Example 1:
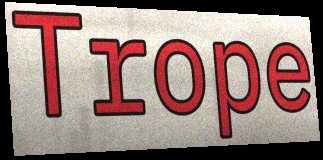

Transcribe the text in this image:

Trope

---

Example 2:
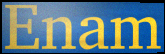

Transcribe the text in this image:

Enam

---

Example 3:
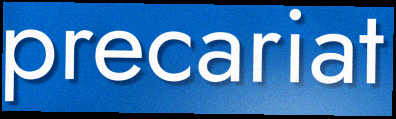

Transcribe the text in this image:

precariat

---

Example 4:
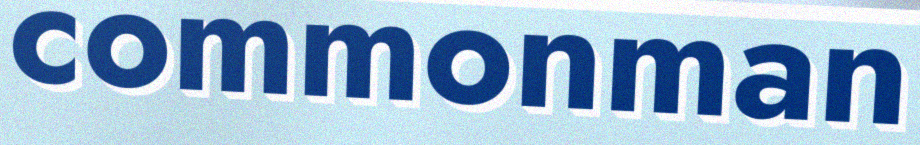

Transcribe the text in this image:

commonman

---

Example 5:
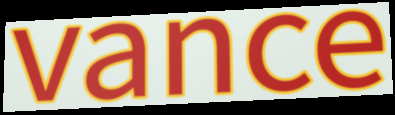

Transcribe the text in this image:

vance